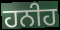
ਹਨੀਹ